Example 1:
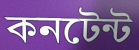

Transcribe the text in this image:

কনটেন্ট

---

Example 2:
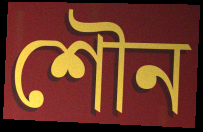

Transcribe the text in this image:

শৌন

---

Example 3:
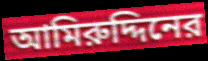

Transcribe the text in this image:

আমিরুদ্দিনের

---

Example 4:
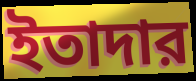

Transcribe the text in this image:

ইতাদার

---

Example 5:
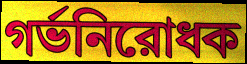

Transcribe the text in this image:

গর্ভনিরোধক